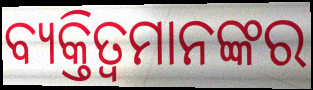
ବ୍ୟକ୍ତିତ୍ୱମାନଙ୍କର